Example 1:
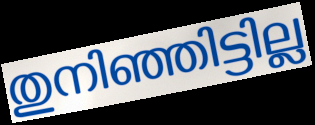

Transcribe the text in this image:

തുനിഞ്ഞിട്ടില്ല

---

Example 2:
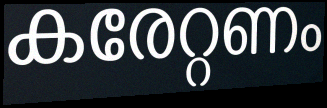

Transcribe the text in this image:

കരേറ്റണം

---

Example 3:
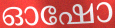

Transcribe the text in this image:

ഓഷോ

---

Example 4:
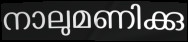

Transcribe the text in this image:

നാലുമണിക്കു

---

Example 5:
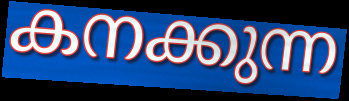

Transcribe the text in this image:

കനക്കുന്ന